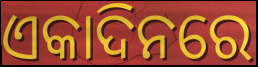
ଏକାଦିନରେ